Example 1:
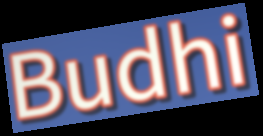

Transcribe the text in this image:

Budhi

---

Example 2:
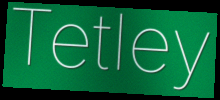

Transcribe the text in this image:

Tetley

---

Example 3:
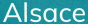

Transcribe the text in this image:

Alsace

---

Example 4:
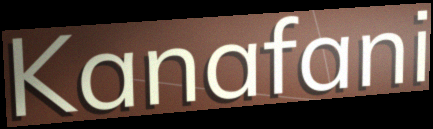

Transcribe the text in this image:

Kanafani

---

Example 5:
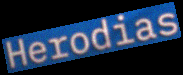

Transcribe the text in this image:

Herodias